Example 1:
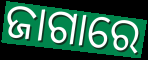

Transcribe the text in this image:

ଜାଗାରେ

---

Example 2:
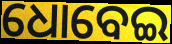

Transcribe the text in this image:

ଧୋବେଇ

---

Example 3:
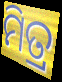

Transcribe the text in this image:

ମିତ୍ର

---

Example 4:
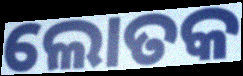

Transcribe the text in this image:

ଲୋତକ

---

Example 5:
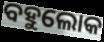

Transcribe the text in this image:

ବହୁଲୋକ